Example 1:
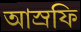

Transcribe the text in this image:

আস্রফি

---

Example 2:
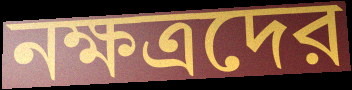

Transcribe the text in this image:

নক্ষত্রদের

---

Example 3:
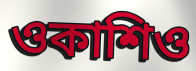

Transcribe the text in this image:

ওকাশিও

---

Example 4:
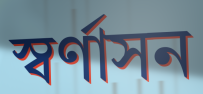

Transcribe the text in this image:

স্বর্ণাসন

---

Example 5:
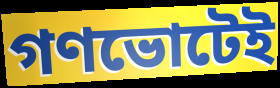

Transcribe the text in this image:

গণভোটেই